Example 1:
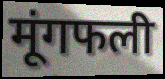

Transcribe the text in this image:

मूंगफली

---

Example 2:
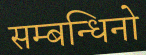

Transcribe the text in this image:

सम्बन्धिनो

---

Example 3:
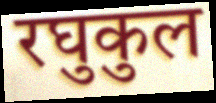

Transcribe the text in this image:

रघुकुल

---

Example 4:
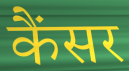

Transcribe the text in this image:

कैंसर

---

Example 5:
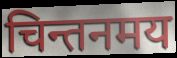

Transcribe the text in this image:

चिन्तनमय